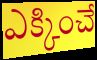
ఎక్కించే